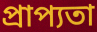
প্রাপ্যতা